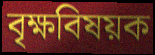
বৃক্ষবিষয়ক